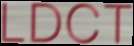
LDCT